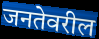
जनतेवरील